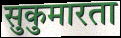
सुकुमारता